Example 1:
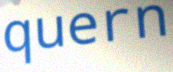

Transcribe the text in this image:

quern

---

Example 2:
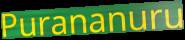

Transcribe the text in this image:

Purananuru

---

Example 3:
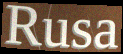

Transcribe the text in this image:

Rusa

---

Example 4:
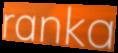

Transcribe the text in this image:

ranka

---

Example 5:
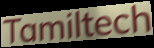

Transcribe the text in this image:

Tamiltech